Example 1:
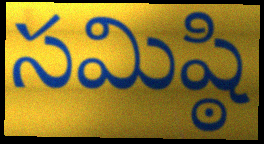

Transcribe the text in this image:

సమిష్ఠి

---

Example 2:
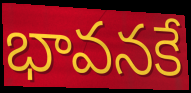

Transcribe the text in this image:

భావనకే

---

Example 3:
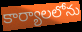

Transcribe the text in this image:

కార్యాలలోను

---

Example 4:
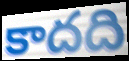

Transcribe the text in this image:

కాదది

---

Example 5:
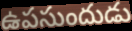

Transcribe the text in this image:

ఉపసుందుడు